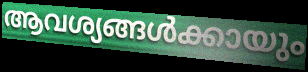
ആവശ്യങ്ങൾക്കായും